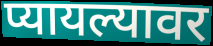
प्यायल्यावर